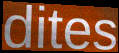
dites